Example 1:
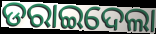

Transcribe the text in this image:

ଡରାଇଦେଲା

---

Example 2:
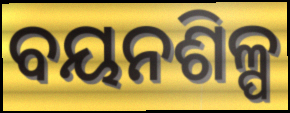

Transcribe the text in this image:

ବୟନଶିଳ୍ପ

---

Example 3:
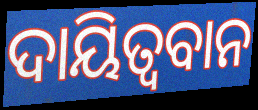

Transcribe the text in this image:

ଦାୟିତ୍ବବାନ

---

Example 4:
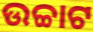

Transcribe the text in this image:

ଉଚ୍ଚାଟ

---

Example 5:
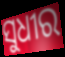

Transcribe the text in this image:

ସୁଧୀର